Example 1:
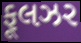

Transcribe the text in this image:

ફૂલઝર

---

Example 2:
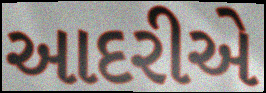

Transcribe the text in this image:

આદરીએ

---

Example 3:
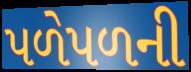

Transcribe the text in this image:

પળેપળની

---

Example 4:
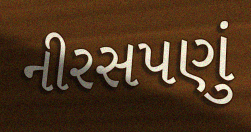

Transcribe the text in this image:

નીરસપણું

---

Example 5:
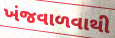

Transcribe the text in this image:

ખંજવાળવાથી